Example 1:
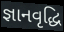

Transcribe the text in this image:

જ્ઞાનવૃદ્ધિ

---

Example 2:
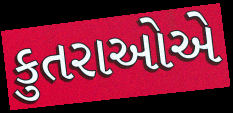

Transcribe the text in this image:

કુતરાઓએ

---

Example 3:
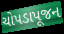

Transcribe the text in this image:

ચોપડાપૂજન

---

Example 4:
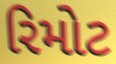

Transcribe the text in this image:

રિમોટ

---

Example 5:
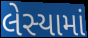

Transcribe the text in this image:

લેસ્યામાં